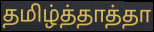
தமிழ்த்தாத்தா